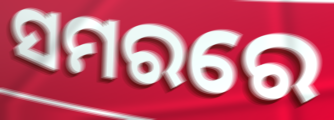
ସମରରେ